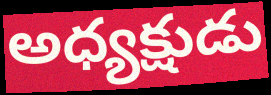
అధ్యక్షుడు